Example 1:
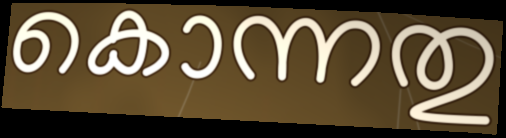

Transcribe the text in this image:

കൊന്നതു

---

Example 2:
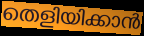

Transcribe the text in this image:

തെളിയിക്കാൻ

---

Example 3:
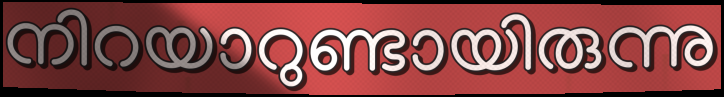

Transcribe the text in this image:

നിറയാറുണ്ടായിരുന്നു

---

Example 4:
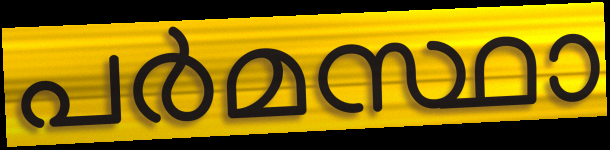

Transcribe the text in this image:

പർമസ്ഥാ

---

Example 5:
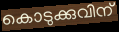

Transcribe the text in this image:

കൊടുക്കുവിന്